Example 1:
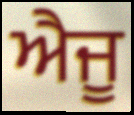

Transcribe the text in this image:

ਐਜੂ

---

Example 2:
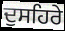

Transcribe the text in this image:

ਦੁਸਹਿਰੇ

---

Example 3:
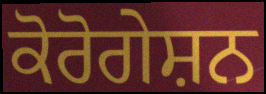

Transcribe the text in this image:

ਕੋਰੋਗੇਸ਼ਨ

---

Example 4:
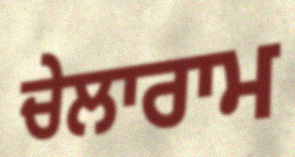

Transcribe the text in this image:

ਚੇਲਾਰਾਮ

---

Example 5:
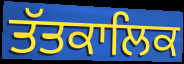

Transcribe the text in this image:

ਤੱਤਕਾਲਿਕ